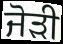
ਜੋਡ਼ੀ